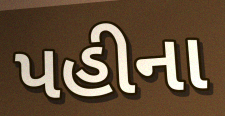
પહીના